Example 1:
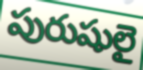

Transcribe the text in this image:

పురుషులై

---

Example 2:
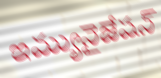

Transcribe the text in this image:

ఇమ్యునైజేషన్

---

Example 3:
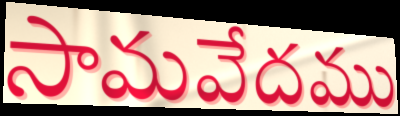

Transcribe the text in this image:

సామవేదము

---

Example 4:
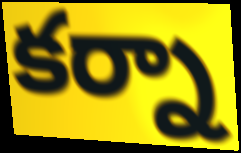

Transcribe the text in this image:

కర్నా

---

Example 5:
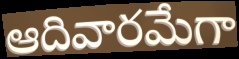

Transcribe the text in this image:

ఆదివారమేగా